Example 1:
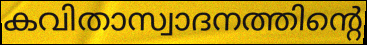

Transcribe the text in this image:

കവിതാസ്വാദനത്തിന്റെ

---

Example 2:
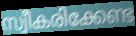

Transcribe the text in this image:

സ്വീകരിക്കേണ്ട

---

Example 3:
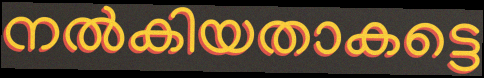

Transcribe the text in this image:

നൽകിയതാകട്ടെ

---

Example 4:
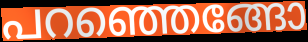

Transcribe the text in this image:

പറഞ്ഞെങ്ങോ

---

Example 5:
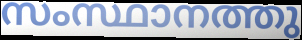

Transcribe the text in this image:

സംസ്ഥാനത്തു